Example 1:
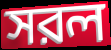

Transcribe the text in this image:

সরল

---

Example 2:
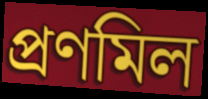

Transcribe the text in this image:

প্রণমিল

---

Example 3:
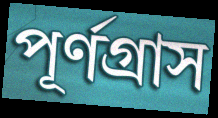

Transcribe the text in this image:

পূর্ণগ্রাস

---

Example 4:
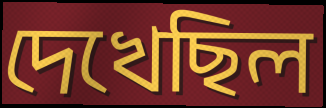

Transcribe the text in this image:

দেখেছিল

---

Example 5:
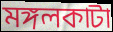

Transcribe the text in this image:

মঙ্গলকাটা